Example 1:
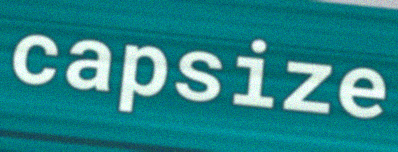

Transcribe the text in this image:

capsize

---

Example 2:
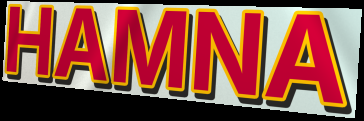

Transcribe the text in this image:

HAMNA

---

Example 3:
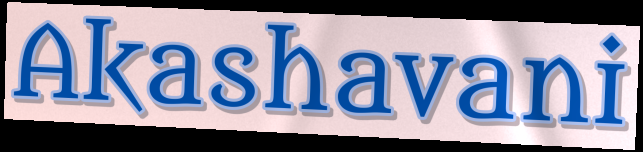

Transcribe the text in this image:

Akashavani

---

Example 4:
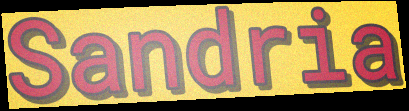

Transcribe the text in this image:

Sandria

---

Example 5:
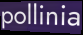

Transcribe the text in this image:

pollinia